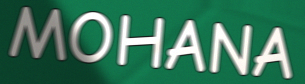
MOHANA